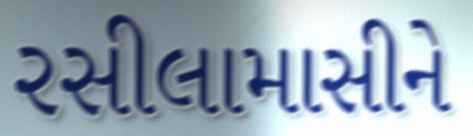
રસીલામાસીને